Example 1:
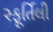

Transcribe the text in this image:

સ્ફૂર્તિલી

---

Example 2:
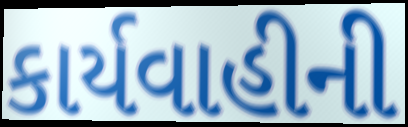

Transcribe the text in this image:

કાર્યવાહીની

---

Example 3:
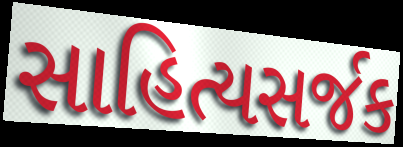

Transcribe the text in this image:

સાહિત્યસર્જક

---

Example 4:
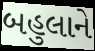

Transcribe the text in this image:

બહુલાને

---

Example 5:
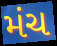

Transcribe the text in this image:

મંચ